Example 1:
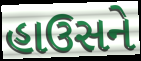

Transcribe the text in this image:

હાઉસને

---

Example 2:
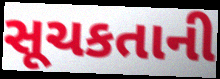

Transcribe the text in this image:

સૂચકતાની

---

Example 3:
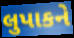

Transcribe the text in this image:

લુપાકને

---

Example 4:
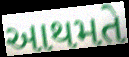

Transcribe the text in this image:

આથમતે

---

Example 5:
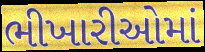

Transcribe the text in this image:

ભીખારીઓમાં